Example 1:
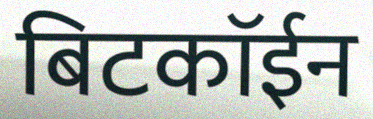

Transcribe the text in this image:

बिटकॉईन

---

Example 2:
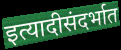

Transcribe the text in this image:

इत्यादीसंदर्भात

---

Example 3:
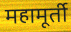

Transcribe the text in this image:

महामूर्ती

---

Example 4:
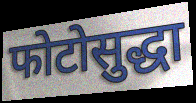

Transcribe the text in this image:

फोटोसुद्धा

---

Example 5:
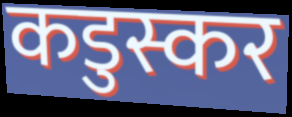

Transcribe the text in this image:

कडुस्कर